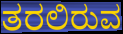
ತರಲಿರುವ